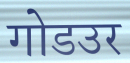
गोडउर